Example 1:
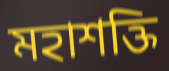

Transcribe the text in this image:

মহাশক্তি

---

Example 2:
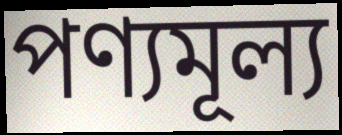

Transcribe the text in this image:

পণ্যমূল্য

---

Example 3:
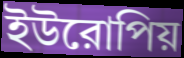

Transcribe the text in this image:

ইউরোপিয়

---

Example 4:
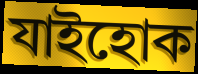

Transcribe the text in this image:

যাইহোক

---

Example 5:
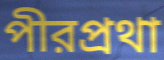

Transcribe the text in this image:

পীরপ্রথা